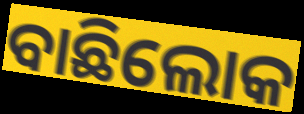
ବାଛିଲୋକ